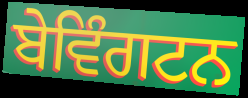
ਬੇਵਿੰਗਟਨ